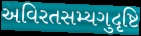
અવિરતસમ્યગુદૃષ્ટિ